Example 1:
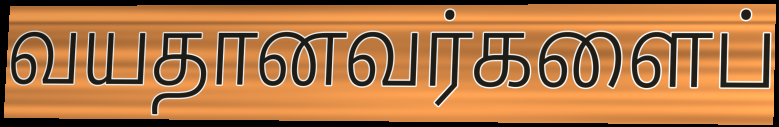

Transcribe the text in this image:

வயதானவர்களைப்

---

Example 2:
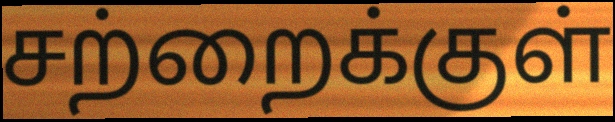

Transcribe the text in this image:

சற்றைக்குள்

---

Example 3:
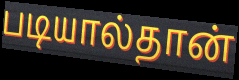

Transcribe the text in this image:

படியால்தான்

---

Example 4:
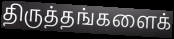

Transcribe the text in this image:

திருத்தங்களைக்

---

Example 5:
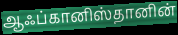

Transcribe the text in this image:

ஆஃப்கானிஸ்தானின்